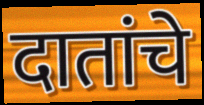
दातांचे